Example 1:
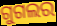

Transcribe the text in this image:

ଗୁଗଲର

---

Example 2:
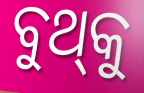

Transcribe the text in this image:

ବୁଥ୍‌କୁ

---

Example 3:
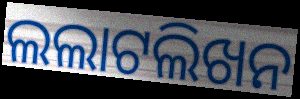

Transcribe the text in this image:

ଲଲାଟଲିଖନ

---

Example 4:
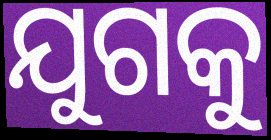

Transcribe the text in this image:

ଯୁଗକୁ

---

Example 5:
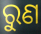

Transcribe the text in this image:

ରୁଣ